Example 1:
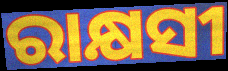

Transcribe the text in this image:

ରାକ୍ଷସୀ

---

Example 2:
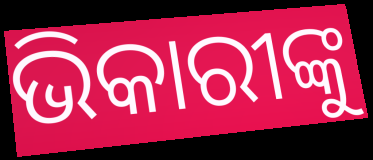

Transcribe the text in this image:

ଭିକାରୀଙ୍କୁ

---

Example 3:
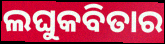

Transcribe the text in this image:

ଲଘୁକବିତାର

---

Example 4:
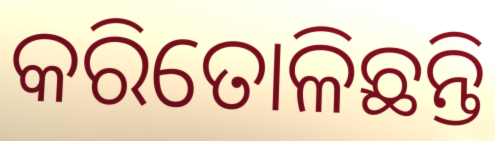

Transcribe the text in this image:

କରିତୋଳିଛନ୍ତି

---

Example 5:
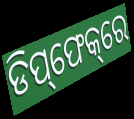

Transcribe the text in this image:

ଡିପ୍‌ଫେକ୍‌ରେ